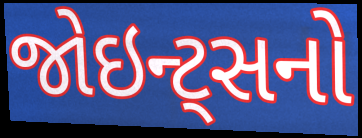
જોઇન્ટ્સનો